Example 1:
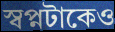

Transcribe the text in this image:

স্বপ্নটাকেও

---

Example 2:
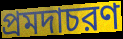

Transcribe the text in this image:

প্রমদাচরণ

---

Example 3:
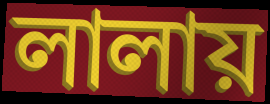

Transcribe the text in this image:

লালায়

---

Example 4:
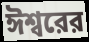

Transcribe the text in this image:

ঈশ্বরের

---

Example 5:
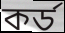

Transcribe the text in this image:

কর্ড